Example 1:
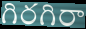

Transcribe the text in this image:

గిరగిరా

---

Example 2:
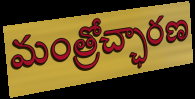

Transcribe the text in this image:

మంత్రోచ్ఛారణ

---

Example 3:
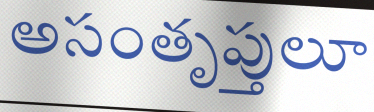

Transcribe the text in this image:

అసంతృప్తులూ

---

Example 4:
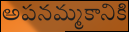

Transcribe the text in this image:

అపనమ్మకానికి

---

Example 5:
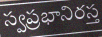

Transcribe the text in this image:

స్వప్రభానిరస్త